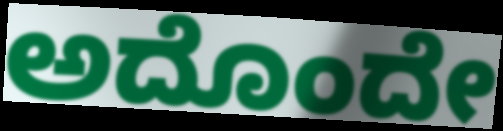
ಅದೊಂದೇ